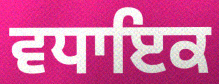
ਵਧਾਇਕ